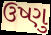
ઉષ્ણુ